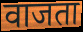
वाजता